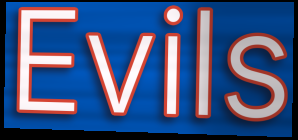
Evils